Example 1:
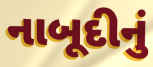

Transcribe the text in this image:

નાબૂદીનું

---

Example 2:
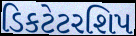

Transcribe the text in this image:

ડિકટેટરશિપ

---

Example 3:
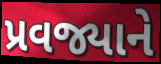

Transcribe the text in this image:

પ્રવજ્યાને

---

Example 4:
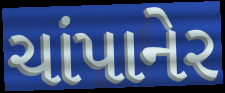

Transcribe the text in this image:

ચાંપાનેર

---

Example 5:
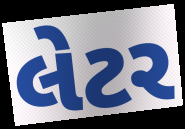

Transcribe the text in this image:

લેટર